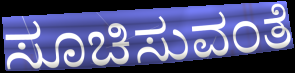
ಸೂಚಿಸುವಂತೆ